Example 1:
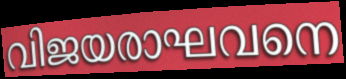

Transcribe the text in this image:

വിജയരാഘവനെ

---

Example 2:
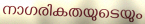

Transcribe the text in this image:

നാഗരികതയുടെയും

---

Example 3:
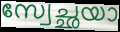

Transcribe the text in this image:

സ്വേച്ഛയാ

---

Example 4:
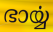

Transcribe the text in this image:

ഭാൎയ്യ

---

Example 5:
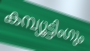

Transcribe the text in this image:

കമ്പ്യൂട്ടിംഗും